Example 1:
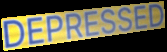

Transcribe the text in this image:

DEPRESSED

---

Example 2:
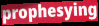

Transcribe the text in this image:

prophesying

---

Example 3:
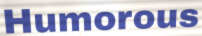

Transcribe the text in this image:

Humorous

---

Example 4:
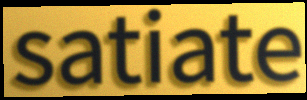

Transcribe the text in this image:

satiate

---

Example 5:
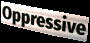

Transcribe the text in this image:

Oppressive